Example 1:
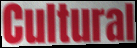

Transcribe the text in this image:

Cultural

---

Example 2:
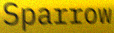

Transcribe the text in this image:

Sparrow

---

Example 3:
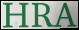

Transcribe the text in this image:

HRA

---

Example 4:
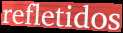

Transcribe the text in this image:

refletidos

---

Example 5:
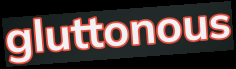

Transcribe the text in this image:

gluttonous